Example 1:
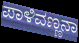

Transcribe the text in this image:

ಪಾಳಿವಣ್ಣನಾ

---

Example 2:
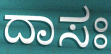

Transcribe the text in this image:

ದಾಸಃ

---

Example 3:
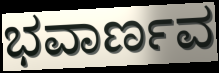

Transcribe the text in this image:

ಭವಾರ್ಣವ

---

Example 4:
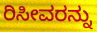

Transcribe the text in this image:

ರಿಸೀವರನ್ನು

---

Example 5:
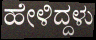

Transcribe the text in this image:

ಹೇಳಿದ್ದಳು